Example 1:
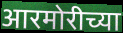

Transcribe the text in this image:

आरमोरीच्या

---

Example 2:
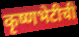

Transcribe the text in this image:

कृष्णभेटीची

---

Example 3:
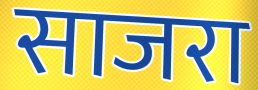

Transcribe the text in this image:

साजरा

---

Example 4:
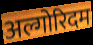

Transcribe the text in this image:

अल्गोरिदम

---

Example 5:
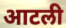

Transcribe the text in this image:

आटली